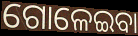
ଗୋଳେଇବା